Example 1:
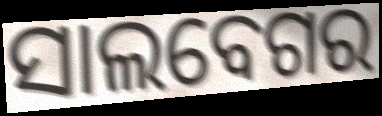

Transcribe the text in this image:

ସାଲବେଗର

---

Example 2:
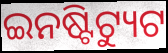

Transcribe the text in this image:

ଇନଷ୍ଟିଟ୍ୟୁଟ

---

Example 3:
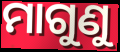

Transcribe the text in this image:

ମାଗୁଣୁ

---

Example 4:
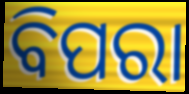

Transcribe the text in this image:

ବିପରା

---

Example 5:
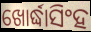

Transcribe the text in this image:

ଖୋର୍ଦ୍ଧାସିଂହ